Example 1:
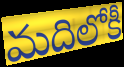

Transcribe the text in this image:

మదిలోకీ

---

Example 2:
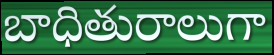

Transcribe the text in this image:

బాధితురాలుగా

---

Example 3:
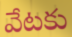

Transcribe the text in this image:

వేటకు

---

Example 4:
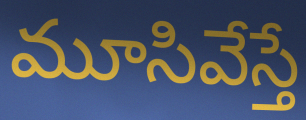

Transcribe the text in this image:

మూసివేస్తే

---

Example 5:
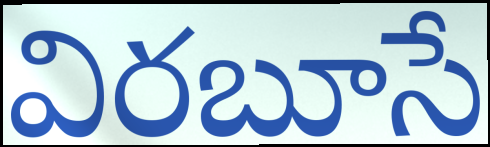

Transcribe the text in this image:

విరబూసే